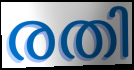
രതി